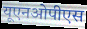
यूएनओपीएस